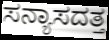
ಸನ್ಯಾಸದತ್ತ